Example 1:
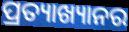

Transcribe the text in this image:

ପ୍ରତ୍ୟାଖ୍ୟାନର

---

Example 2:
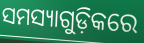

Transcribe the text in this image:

ସମସ୍ୟାଗୁଡ଼ିକରେ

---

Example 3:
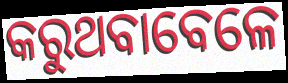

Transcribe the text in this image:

କରୁଥବାବେଳେ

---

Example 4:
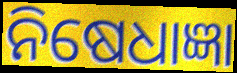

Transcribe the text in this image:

ନିଷେଧାଜ୍ଞା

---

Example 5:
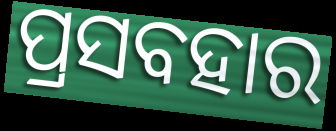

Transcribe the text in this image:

ପ୍ରସବହାର